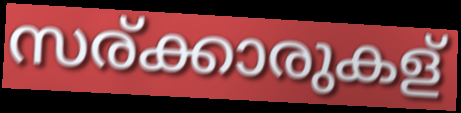
സര്ക്കാരുകള്